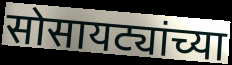
सोसायट्यांच्या